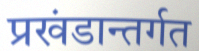
प्रखंडान्तर्गत